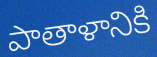
పాతాళానికి